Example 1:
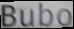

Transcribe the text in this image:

Bubo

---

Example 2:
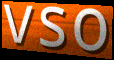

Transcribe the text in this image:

vso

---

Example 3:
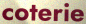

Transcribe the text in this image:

coterie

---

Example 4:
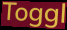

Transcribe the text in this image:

Toggl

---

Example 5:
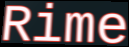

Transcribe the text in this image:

Rime